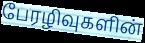
பேரழிவுகளின்